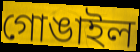
গোঙাইল